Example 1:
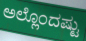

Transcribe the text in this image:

ಅಲ್ಲೊಂದಷ್ಟು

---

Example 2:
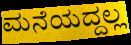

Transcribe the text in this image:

ಮನೆಯದ್ದಲ್ಲ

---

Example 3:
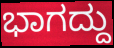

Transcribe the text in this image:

ಭಾಗದ್ದು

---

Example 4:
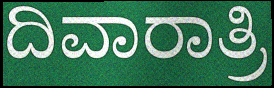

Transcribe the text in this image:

ದಿವಾರಾತ್ರಿ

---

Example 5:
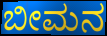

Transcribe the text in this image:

ಬೀಮನ